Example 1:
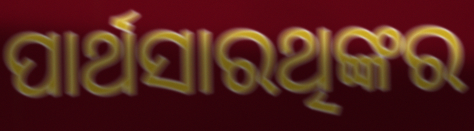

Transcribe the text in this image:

ପାର୍ଥସାରଥିଙ୍କର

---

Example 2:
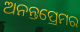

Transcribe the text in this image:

ଅନନ୍ତପ୍ରେମର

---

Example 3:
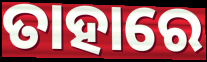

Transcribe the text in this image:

ତାହାରେ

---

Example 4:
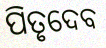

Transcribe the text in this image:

ପିତୃଦେବ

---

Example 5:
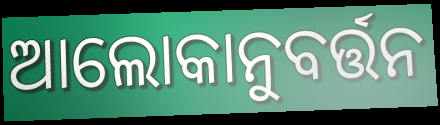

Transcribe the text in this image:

ଆଲୋକାନୁବର୍ତ୍ତନ